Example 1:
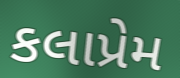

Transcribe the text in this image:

કલાપ્રેમ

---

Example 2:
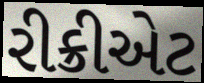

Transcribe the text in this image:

રીક્રીએટ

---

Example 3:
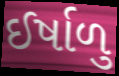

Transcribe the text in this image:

ઈર્ષાળુ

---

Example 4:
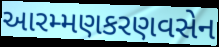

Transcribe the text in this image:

આરમ્મણકરણવસેન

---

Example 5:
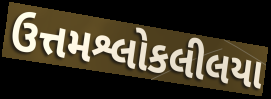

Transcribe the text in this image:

ઉત્તમશ્લોકલીલયા